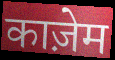
काज़ेम